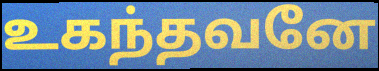
உகந்தவனே